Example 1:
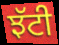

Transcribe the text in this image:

ਝੱਟੀ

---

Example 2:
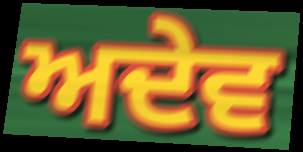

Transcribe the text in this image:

ਅਦੇਵ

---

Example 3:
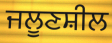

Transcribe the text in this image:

ਜਲੂਣਸ਼ੀਲ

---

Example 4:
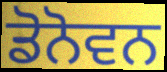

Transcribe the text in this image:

ਡੋਨੋਵਨ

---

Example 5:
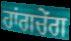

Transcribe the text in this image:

ਹਾਂਗਚੇਂਗ